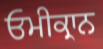
ਓਮੀਕ੍ਰਾਨ